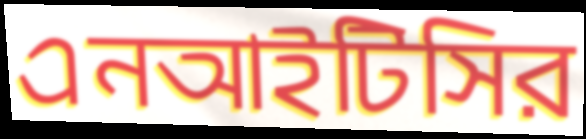
এনআইটিসির